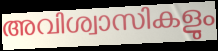
അവിശ്വാസികളും